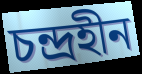
চন্দ্রহীন